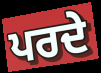
ਪਰਦੇ